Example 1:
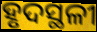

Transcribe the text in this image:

ହୃଦସ୍ଥଳୀ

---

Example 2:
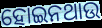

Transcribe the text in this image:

ହୋଇନଥାଉ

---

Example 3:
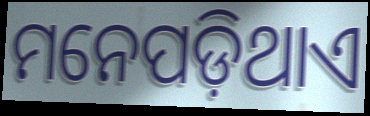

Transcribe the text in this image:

ମନେପଡ଼ିଥାଏ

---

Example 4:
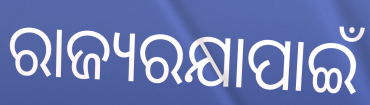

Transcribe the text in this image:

ରାଜ୍ୟରକ୍ଷାପାଇଁ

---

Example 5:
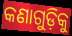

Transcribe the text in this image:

କଣାଗୁଡ଼ିକୁ